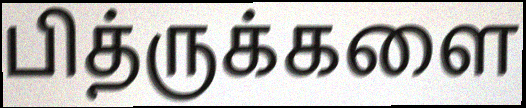
பித்ருக்களை